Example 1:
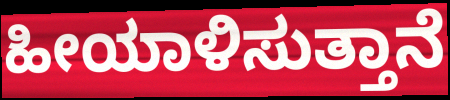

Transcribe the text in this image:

ಹೀಯಾಳಿಸುತ್ತಾನೆ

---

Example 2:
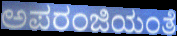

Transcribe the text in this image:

ಅಪರಂಜಿಯಂತೆ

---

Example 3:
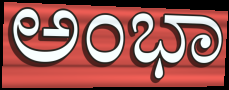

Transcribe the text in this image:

ಅಂಭಾ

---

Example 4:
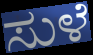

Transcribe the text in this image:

ಸುಳೆ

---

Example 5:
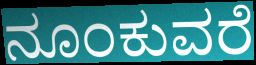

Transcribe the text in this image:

ನೂಂಕುವರೆ